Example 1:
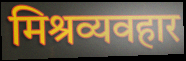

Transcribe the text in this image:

मिश्रव्यवहार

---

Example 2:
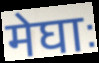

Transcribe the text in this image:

मेघाः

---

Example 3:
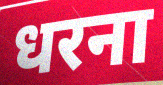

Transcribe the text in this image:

धरना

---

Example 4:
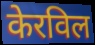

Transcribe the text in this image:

केरविल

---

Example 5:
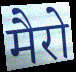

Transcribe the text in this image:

मैरो